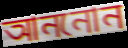
আননোন